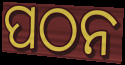
ପଠନ